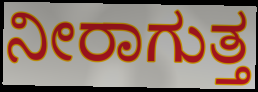
ನೀರಾಗುತ್ತ